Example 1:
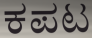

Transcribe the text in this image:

ಕಪಟ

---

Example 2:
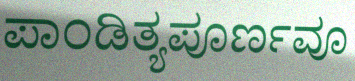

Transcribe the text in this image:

ಪಾಂಡಿತ್ಯಪೂರ್ಣವೂ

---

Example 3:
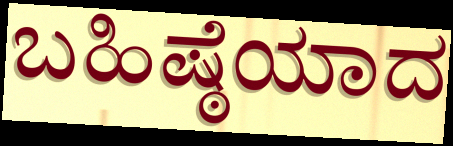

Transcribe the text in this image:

ಬಹಿಷ್ಠೆಯಾದ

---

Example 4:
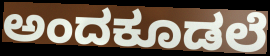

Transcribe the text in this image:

ಅಂದಕೂಡಲೆ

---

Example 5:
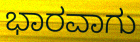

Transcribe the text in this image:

ಭಾರವಾಗು